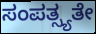
ಸಂಪತ್ಸ್ಯತೇ